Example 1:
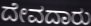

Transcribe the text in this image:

ದೇವದಾರು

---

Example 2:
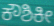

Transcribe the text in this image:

ಕೌಶಿಕೀ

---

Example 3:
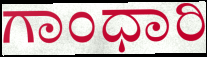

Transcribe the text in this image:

ಗಾಂಧಾರಿ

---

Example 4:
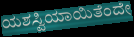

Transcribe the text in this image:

ಯಶಸ್ವಿಯಾಯಿತೆಂದೇ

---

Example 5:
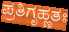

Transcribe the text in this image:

ಪ್ರತಿಗೃಹ್ಣತಃ